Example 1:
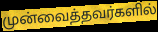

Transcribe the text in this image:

முன்வைத்தவர்களில்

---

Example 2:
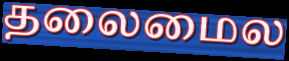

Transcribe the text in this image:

தலைமைல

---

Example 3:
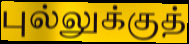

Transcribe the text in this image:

புல்லுக்குத்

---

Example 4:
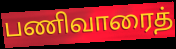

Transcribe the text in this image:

பணிவாரைத்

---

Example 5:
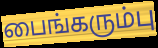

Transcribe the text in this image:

பைங்கரும்பு